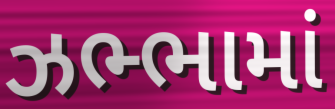
ઝભ્ભામાં